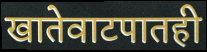
खातेवाटपातही